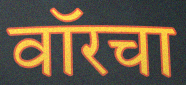
वॉरचा